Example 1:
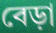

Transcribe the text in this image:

বেড়া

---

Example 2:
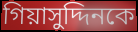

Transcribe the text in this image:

গিয়াসুদ্দিনকে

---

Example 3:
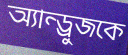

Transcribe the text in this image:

অ্যান্ড্রুজকে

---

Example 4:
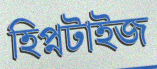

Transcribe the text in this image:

হিপ্নটাইজ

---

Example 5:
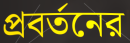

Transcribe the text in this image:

প্রবর্তনের